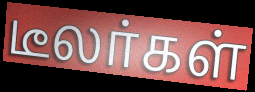
டீலர்கள்